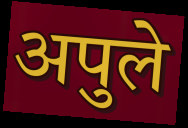
अपुले